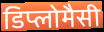
डिप्लोमैसी